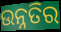
ଉନ୍ନତିର